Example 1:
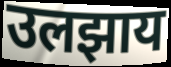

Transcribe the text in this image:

उलझाय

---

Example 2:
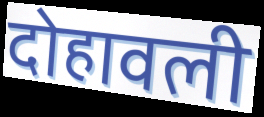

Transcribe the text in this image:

दोहावली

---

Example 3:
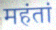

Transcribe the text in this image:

महंतां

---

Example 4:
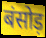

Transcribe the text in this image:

बंसोड़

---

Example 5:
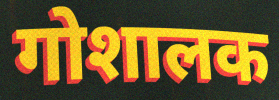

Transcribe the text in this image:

गोशालक